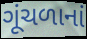
ગૂંચળાનાં